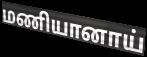
மணியானாய்